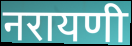
नरायणी